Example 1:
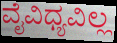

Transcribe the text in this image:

ವೈವಿಧ್ಯವಿಲ್ಲ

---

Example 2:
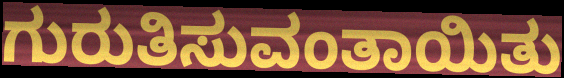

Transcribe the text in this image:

ಗುರುತಿಸುವಂತಾಯಿತು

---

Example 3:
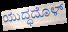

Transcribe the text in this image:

ಯುದ್ಧದೊಳ್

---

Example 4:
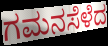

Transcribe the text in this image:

ಗಮನಸೆಳೆದ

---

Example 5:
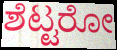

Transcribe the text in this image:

ಶೆಟ್ಟರೋ